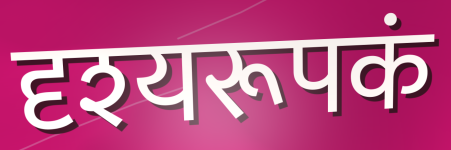
दृश्‍यरूपकं